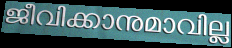
ജീവിക്കാനുമാവില്ല